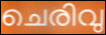
ചെരിവു